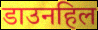
डाउनहिल